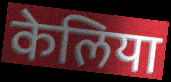
केलिया